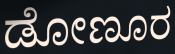
ಡೋಣೂರ